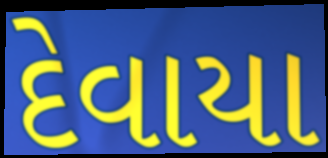
દેવાયા